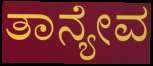
ತಾನ್ಯೇವ